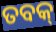
ତବକ୍